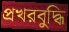
প্রখরবুদ্ধি